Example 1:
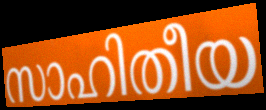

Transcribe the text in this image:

സാഹിതീയ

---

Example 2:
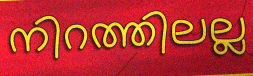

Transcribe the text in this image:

നിറത്തിലല്ല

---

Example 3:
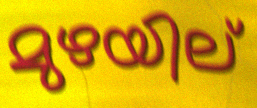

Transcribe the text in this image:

മുഴയില്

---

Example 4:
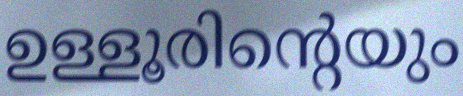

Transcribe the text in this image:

ഉള്ളൂരിന്റെയും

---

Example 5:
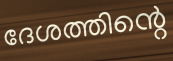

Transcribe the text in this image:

ദേശത്തിന്റെ